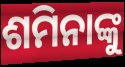
ଶମିନାଙ୍କୁ